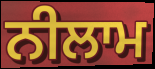
ਨੀਲਾਮ